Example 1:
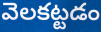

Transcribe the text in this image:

వెలకట్టడం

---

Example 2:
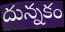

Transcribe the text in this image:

దున్నకం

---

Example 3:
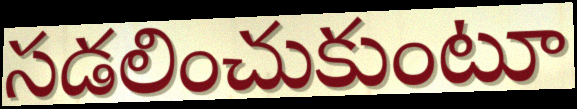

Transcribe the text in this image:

సడలించుకుంటూ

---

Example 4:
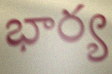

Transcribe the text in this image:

భార్య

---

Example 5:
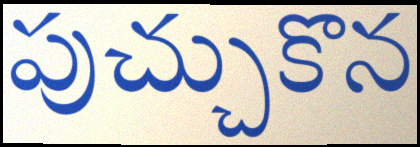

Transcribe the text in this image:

పుచ్చుకొన